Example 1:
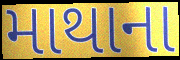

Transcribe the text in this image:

માથાના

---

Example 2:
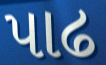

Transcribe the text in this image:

પાઢ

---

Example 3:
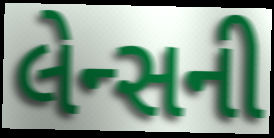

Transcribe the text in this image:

લેન્સની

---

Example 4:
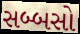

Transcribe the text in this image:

સબ્બસો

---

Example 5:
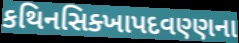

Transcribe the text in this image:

કથિનસિક્ખાપદવણ્ણના